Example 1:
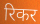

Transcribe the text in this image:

रिकर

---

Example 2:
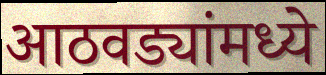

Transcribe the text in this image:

आठवड्यांमध्ये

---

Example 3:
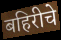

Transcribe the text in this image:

बहिरीचे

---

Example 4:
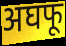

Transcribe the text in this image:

अघफू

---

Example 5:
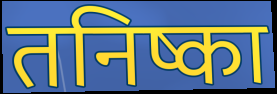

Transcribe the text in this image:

तनिष्का